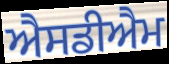
ਐਸਡੀਐਮ